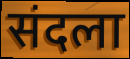
संदला